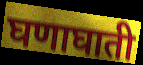
घणाघाती